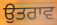
ਉਤਰਾਵ